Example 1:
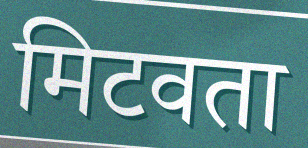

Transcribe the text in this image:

मिटवता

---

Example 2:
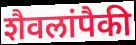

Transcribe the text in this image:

शैवलांपैकी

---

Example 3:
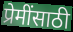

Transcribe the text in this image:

प्रेमींसाठी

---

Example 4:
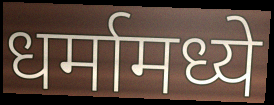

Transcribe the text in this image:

धर्मामध्ये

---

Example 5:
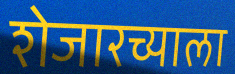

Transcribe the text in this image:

शेजारच्याला